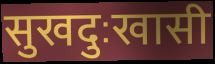
सुखदुःखासी